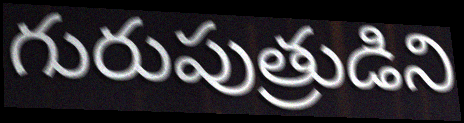
గురుపుత్రుడిని